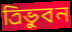
ত্রিভুবন